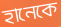
হানেকে